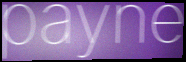
payne